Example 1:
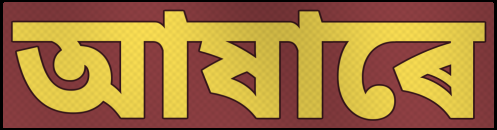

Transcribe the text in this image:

আষাৰে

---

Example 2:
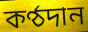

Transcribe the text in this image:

কণ্ঠদান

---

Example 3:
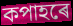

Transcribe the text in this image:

কপাহৰে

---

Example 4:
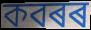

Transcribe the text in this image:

কবৰৰ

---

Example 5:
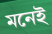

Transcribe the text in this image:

মনেই